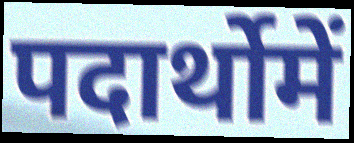
पदार्थोमें